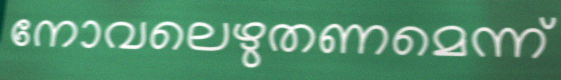
നോവലെഴുതണമെന്ന്